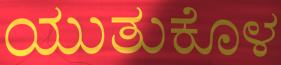
ಯುತುಕೊಳ